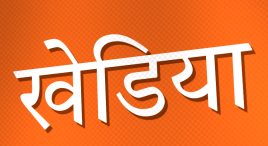
खेडिया